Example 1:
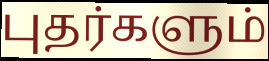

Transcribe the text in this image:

புதர்களும்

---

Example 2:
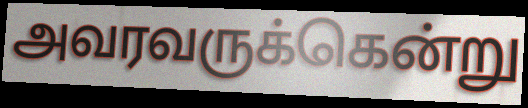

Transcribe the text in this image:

அவரவருக்கென்று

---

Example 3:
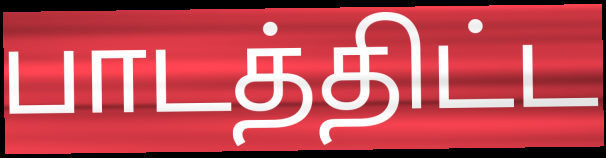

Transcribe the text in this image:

பாடத்திட்ட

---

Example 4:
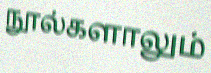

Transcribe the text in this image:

நூல்களாலும்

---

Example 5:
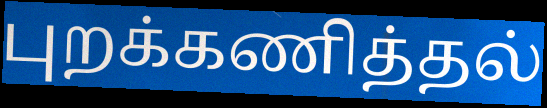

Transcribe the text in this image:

புறக்கணித்தல்